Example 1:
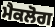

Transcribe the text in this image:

ਮੈਕਲੋਗ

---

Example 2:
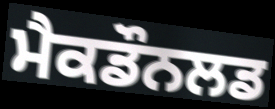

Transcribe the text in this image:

ਮੈਕਡੌਨਲਡ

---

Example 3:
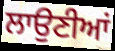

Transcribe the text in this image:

ਲਾਉਣੀਆਂ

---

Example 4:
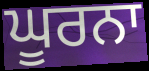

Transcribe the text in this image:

ਘੂਰਨਾ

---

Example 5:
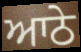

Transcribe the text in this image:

ਆਠੇ